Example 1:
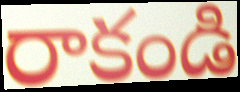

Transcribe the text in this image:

రాకండి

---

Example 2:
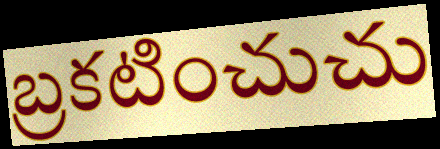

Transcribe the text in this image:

బ్రకటించుచు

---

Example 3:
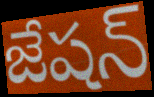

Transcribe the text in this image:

జేషన్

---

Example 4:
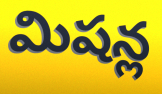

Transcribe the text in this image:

మిషన్ల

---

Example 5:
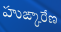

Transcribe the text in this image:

హుఙ్కారేణ